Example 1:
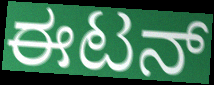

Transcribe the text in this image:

ಈಟನ್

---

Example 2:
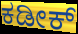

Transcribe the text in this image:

ಕಡೀಕ್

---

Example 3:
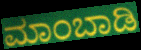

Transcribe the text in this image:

ಮಾಂಬಾಡಿ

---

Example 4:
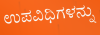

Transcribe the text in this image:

ಉಪವಿಧಿಗಳನ್ನು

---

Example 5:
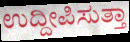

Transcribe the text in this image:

ಉದ್ದೀಪಿಸುತ್ತಾ